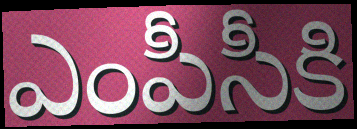
ఎంపీసీకి